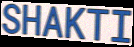
SHAKTI